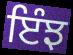
ਇੰਝ